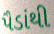
પૈડાંથી